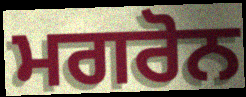
ਮਗਰੋਨ